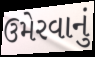
ઉમેરવાનું